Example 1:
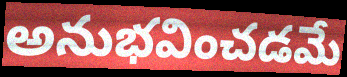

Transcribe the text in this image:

అనుభవించడమే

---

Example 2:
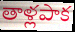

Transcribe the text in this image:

తాళ్లపాక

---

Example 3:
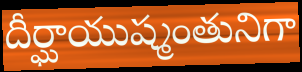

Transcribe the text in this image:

దీర్ఘాయుష్మంతునిగా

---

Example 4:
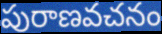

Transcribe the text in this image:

పురాణవచనం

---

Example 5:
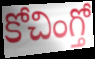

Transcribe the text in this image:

కోచింగ్తో